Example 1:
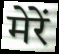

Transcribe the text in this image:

मेरें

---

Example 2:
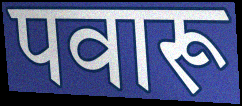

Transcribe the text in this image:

पवारू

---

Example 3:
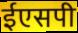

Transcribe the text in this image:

ईएसपी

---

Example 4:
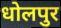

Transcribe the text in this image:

धोलपुर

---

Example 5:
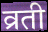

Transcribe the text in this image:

व्रती